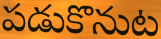
పడుకొనుట